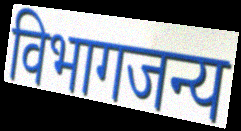
विभागजन्य